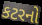
કટરનો